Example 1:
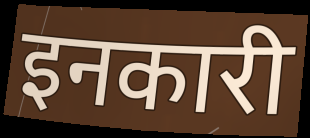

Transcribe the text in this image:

इनकारी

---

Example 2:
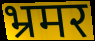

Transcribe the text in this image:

भ्रमर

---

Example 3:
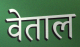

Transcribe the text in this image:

वेताल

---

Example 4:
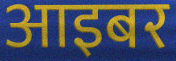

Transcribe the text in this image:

आइबर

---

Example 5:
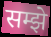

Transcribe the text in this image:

सम्झे